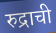
रुद्राची